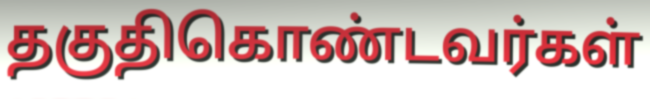
தகுதிகொண்டவர்கள்